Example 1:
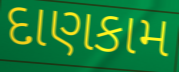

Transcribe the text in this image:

દાણકામ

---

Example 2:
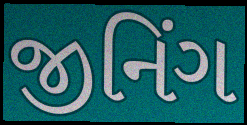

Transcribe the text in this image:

જીનિંગ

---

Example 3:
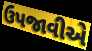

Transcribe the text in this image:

ઉપજાવીએ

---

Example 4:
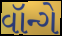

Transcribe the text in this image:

વૉન્ગે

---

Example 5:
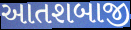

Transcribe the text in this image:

આતશબાજી